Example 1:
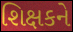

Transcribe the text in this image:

શિક્ષકને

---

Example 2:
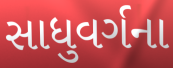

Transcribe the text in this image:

સાધુવર્ગના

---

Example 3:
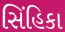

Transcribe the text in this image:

સિંહિકા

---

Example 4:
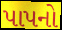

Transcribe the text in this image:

પાપનો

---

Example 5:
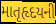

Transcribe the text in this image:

માતૃહૃદયની